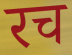
रच